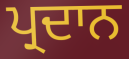
ਪ੍ਰਦਾਨ